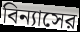
বিন্যাসের